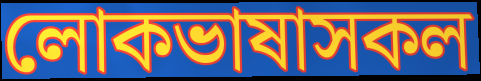
লোকভাষাসকল